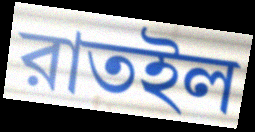
রাতইল